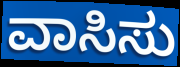
ವಾಸಿಸು